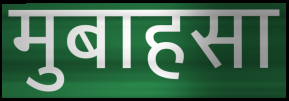
मुबाहसा